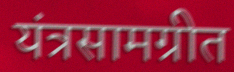
यंत्रसामग्रीत